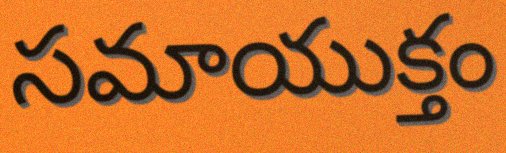
సమాయుక్తం